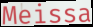
Meissa